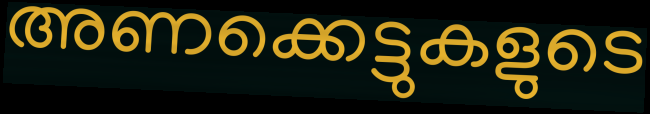
അണക്കെട്ടുകളുടെ